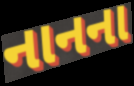
નાનના